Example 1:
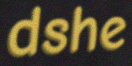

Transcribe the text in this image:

dshe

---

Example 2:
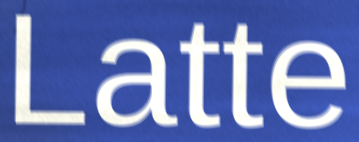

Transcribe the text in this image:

Latte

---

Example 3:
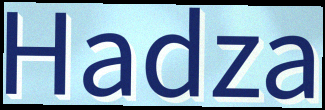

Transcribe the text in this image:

Hadza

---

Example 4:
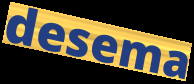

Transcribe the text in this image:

desema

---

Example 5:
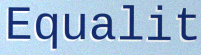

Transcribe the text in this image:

Equalit